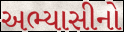
અભ્યાસીનો